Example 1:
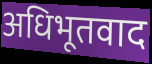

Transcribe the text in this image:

अधिभूतवाद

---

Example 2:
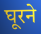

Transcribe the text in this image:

घूरने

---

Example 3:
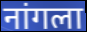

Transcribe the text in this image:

नांगला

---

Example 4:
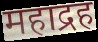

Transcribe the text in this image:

महाद्रह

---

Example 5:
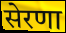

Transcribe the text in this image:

सेरणा